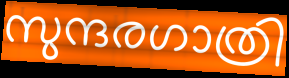
സുന്ദരഗാത്രി